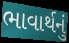
ભાવાર્થનું